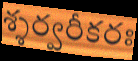
శ్శర్వరీకరః